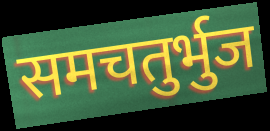
समचतुर्भुज